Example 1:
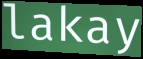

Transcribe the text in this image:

lakay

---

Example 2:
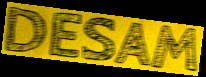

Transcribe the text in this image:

DESAM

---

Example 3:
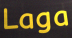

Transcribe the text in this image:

Laga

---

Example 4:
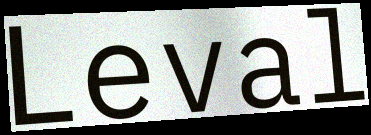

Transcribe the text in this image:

Leval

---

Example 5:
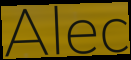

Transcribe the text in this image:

Alec